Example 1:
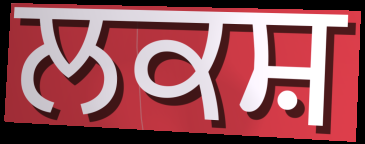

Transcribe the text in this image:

ਲਕਸ਼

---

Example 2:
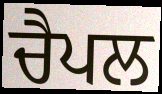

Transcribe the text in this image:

ਚੈਪਲ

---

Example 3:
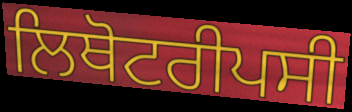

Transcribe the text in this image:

ਲਿਥੋਟਰੀਪਸੀ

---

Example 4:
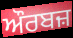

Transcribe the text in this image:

ਔਰਬਜ਼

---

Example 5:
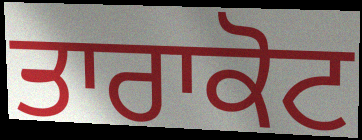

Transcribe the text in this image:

ਤਾਰਾਕੋਟ